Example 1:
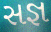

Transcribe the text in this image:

સજ્ઞ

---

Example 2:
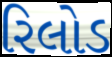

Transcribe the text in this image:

રિલોડ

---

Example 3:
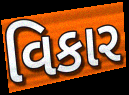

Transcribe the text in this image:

વિકાર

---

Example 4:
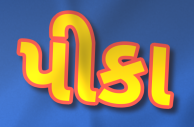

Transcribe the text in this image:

પીકા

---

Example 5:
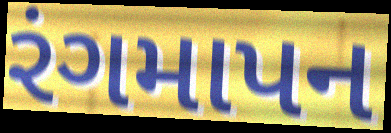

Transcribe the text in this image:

રંગમાપન